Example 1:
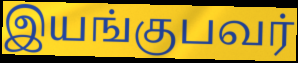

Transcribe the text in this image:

இயங்குபவர்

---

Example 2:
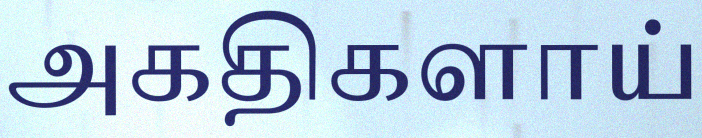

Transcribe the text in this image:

அகதிகளாய்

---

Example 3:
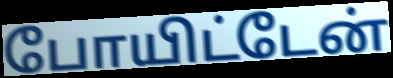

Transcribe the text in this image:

போயிட்டேன்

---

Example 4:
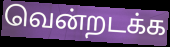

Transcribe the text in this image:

வென்றடக்க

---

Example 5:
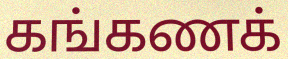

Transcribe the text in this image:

கங்கணக்